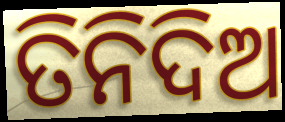
ତିନିଦିଅ